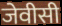
जेवीसी